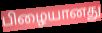
பிழையானது